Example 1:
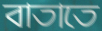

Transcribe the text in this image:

বাতাতে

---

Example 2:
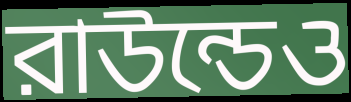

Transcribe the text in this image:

রাউন্ডেও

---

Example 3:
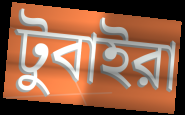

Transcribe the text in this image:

টুবাইরা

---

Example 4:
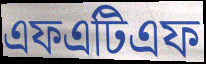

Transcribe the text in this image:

এফএটিএফ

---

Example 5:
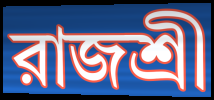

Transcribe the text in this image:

রাজশ্রী